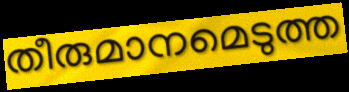
തീരുമാനമെടുത്ത